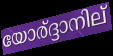
യോര്ദ്ദാനില്